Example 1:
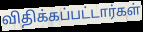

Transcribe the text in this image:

விதிக்கப்பட்டார்கள்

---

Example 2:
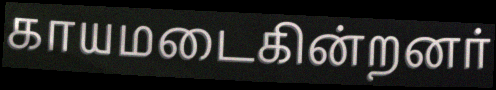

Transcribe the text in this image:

காயமடைகின்றனர்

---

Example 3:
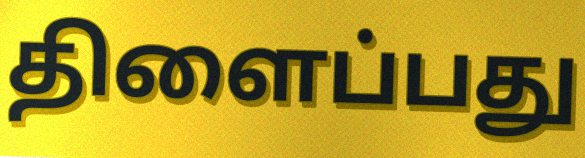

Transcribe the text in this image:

திளைப்பது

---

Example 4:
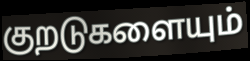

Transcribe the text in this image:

குறடுகளையும்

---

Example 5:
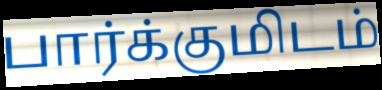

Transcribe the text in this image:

பார்க்குமிடம்